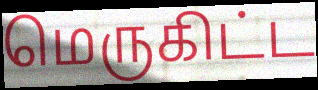
மெருகிட்ட